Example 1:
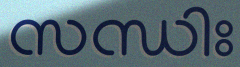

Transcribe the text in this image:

സന്ധിഃ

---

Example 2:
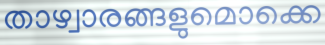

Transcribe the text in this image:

താഴ്വാരങ്ങളുമൊക്കെ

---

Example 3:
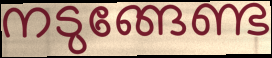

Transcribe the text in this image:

നടുങ്ങേണ്ട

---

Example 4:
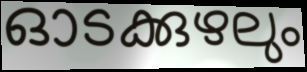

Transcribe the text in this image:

ഓടക്കുഴലും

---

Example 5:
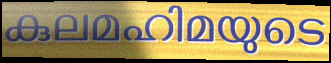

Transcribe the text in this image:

കുലമഹിമയുടെ